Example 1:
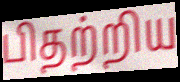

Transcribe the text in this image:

பிதற்றிய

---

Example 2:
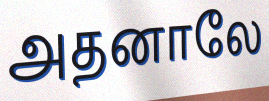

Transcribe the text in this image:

அதனாலே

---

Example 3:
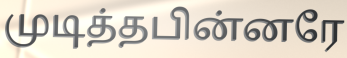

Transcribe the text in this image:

முடித்தபின்னரே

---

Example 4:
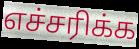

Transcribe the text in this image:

எச்சரிக்க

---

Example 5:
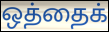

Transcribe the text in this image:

ஒத்தைக்